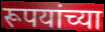
रूपयांच्या